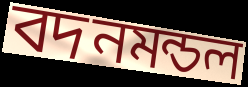
বদনমন্ডল